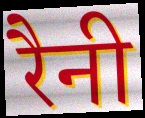
रैनी